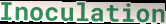
Inoculation